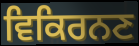
ਵਿਕਿਰਨਣ